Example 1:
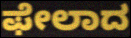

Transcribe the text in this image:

ಫೇಲಾದ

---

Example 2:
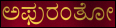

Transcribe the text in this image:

ಅಫುರಂತೋ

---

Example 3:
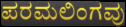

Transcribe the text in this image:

ಪರಮಲಿಂಗವು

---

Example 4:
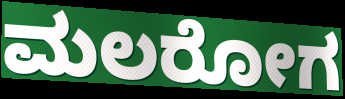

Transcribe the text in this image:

ಮಲರೋಗ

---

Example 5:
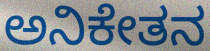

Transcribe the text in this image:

ಅನಿಕೇತನ